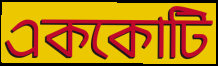
এককোটি